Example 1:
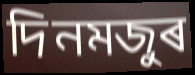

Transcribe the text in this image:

দিনমজুৰ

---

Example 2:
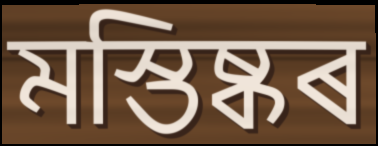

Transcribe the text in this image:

মস্তিষ্কৰ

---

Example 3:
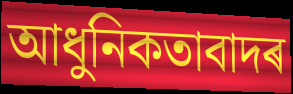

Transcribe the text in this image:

আধুনিকতাবাদৰ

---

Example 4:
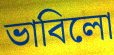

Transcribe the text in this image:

ভাবিলো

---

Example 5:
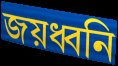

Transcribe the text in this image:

জয়ধ্বনি